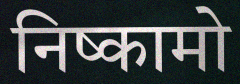
निष्कामो